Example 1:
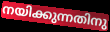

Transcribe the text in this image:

നയിക്കുന്നതിനു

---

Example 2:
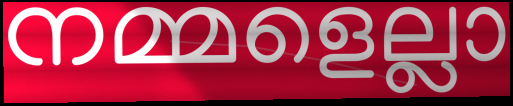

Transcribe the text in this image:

നമ്മളെല്ലാ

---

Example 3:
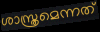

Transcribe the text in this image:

ശാസ്ത്രമെന്നത്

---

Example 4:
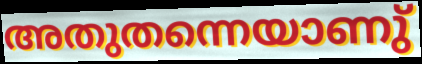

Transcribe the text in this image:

അതുതന്നെയാണു്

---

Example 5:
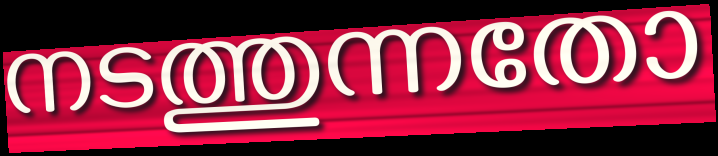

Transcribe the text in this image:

നടത്തുന്നതോ